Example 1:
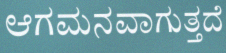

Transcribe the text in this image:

ಆಗಮನವಾಗುತ್ತದೆ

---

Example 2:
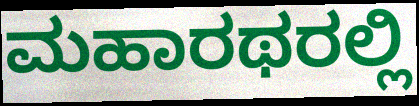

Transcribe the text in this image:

ಮಹಾರಥರಲ್ಲಿ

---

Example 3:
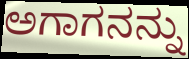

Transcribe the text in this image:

ಅಗಾಗನನ್ನು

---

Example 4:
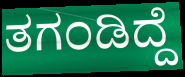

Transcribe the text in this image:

ತಗಂಡಿದ್ದೆ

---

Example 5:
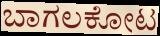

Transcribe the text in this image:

ಬಾಗಲಕೋಟ